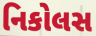
નિકોલસ